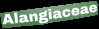
Alangiaceae